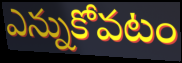
ఎన్నుకోవటం